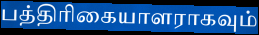
பத்திரிகையாளராகவும்